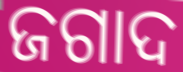
ଜଗାଦ